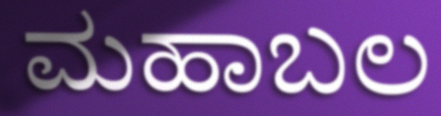
ಮಹಾಬಲ